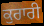
ਕੁਰਾਰੀ